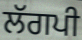
ਲੱਗਪੀ